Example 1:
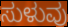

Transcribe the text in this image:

ಸುಳುವು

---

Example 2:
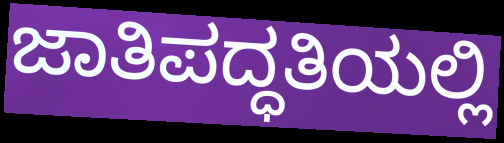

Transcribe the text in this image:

ಜಾತಿಪದ್ಧತಿಯಲ್ಲಿ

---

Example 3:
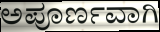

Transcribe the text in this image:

ಅಪೂರ್ಣವಾಗಿ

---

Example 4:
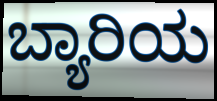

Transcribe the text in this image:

ಬ್ಯಾರಿಯ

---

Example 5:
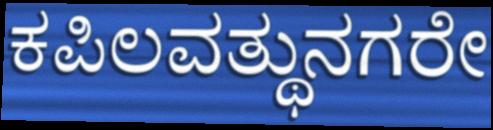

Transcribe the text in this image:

ಕಪಿಲವತ್ಥುನಗರೇ